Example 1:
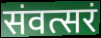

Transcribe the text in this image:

संवत्सरं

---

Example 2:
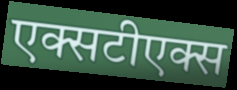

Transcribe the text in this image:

एक्सटीएक्स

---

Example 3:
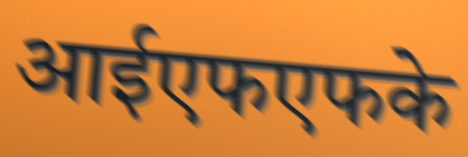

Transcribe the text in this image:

आईएफएफके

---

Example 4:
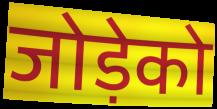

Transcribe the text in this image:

जोड़ेको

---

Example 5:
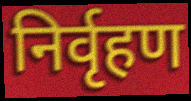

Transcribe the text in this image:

निर्वृहण